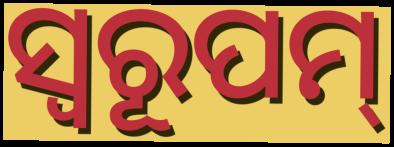
ସ୍ଵରୂପମ୍